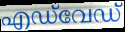
എഡ്‌വേഡ്